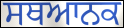
ਸਥਆਨਕ